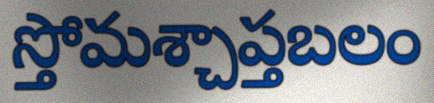
స్తోమశ్చాప్తబలం